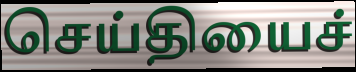
செய்தியைச்